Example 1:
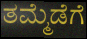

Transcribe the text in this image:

ತಮ್ಮೆಡೆಗೆ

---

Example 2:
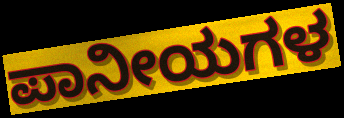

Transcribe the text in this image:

ಪಾನೀಯಗಳ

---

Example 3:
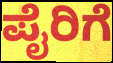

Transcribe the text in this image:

ಪೈರಿಗೆ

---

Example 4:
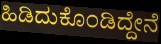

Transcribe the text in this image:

ಹಿಡಿದುಕೊಂಡಿದ್ದೇನೆ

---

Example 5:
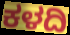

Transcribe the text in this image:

ಕಳದಿ